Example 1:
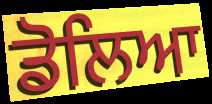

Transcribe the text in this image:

ਡੋਲਿਆ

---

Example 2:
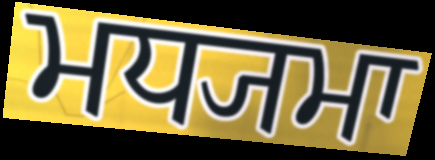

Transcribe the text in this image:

ਮਧ੍ਯਮਾ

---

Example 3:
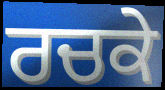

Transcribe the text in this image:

ਰਚਕੇ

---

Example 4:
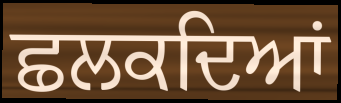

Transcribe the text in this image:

ਛਲਕਦਿਆਂ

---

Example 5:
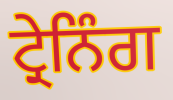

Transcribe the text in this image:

ਟ੍ਰੇਨਿੰਗ